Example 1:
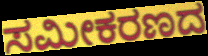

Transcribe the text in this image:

ಸಮೀಕರಣದ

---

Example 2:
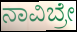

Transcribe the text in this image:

ನಾವಿಬ್ರೇ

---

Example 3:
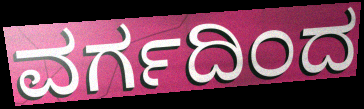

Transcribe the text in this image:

ವರ್ಗದಿಂದ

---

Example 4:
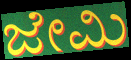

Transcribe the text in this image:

ಜೇಮಿ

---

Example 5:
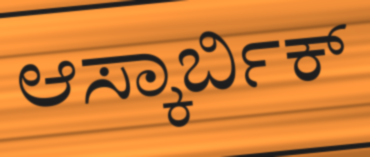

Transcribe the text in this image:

ಆಸ್ಕಾರ್ಬಿಕ್